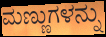
ಮಣ್ಣುಗಳನ್ನು